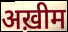
अख़ीम